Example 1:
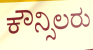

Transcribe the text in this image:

ಕೌನ್ಸಿಲರು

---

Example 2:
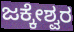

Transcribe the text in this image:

ಜಕ್ಕೇಶ್ವರ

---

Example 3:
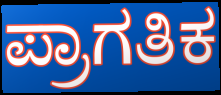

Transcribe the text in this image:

ಪ್ರಾಗತಿಕ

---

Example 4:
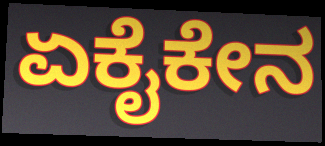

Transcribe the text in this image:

ಏಕೈಕೇನ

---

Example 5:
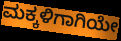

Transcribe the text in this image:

ಮಕ್ಕಳಿಗಾಗಿಯೇ